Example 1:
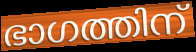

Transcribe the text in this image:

ഭാഗത്തിന്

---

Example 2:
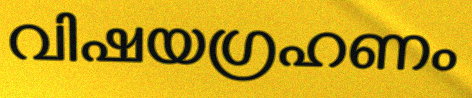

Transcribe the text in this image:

വിഷയഗ്രഹണം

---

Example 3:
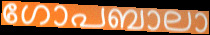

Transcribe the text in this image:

ഗോപബാലാ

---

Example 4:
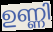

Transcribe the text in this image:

ഉണ്ണി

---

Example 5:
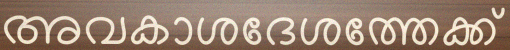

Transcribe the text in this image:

അവകാശദേശത്തേക്ക്